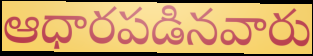
ఆధారపడినవారు